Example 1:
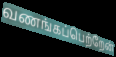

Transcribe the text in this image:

வணங்கப்பெற்றேன்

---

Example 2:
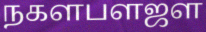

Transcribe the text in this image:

நகளபளஜள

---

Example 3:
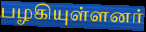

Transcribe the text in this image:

பழகியுள்ளனர்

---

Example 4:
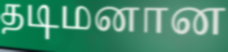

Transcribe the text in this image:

தடிமனான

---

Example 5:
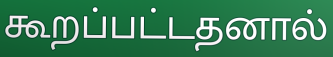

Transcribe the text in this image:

கூறப்பட்டதனால்